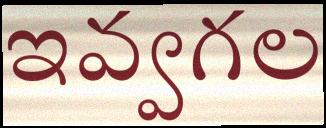
ఇవ్వగల